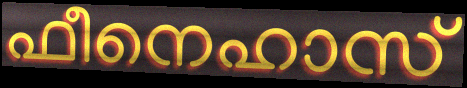
ഫീനെഹാസ്